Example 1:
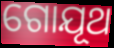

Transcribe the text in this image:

ଗୋଯୂଥ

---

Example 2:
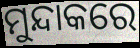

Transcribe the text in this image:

ମୁନ୍ଦାକରେ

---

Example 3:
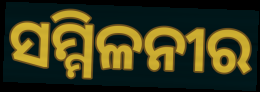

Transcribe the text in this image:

ସମ୍ମିଳନୀର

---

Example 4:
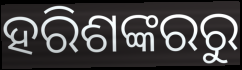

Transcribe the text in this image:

ହରିଶଙ୍କରରୁ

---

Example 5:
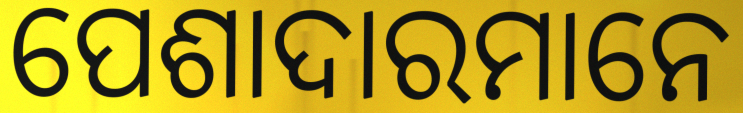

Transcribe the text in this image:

ପେଶାଦାରମାନେ